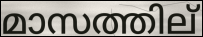
മാസത്തില്